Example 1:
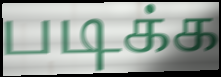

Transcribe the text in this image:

படிக்க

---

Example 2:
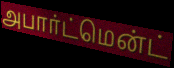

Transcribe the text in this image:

அபார்ட்மென்ட்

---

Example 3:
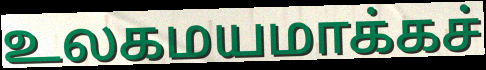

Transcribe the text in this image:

உலகமயமாக்கச்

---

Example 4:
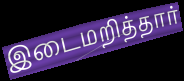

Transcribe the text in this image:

இடைமறித்தார்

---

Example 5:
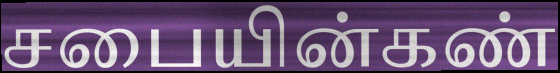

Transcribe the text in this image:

சபையின்கண்